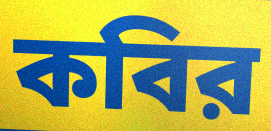
কবির